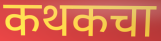
कथकचा